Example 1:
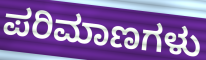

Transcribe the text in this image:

ಪರಿಮಾಣಗಳು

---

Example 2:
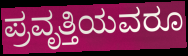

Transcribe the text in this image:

ಪ್ರವೃತ್ತಿಯವರೂ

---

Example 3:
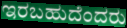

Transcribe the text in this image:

ಇರಬಹುದೆಂದರು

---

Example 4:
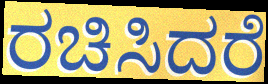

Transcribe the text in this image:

ರಚಿಸಿದರೆ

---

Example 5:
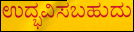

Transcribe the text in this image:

ಉದ್ಭವಿಸಬಹುದು